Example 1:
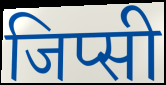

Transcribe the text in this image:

जिप्सी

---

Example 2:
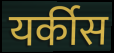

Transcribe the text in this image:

यर्कीस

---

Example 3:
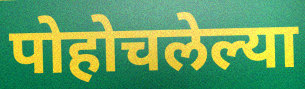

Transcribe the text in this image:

पोहोचलेल्या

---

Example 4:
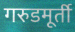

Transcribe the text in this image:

गरुडमूर्ती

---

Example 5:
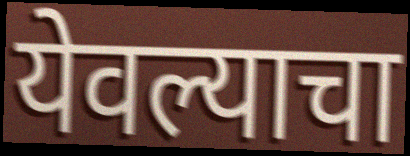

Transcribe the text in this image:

येवल्याचा